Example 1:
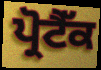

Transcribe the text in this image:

ਪ੍ਰੋਟੈੱਕ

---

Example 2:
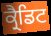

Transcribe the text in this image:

ਕ੍ਰੈਡਿਟ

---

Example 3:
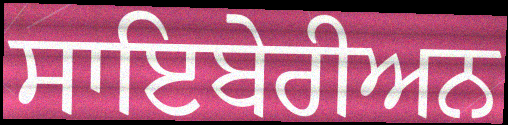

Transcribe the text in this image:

ਸਾਇਬੇਰੀਅਨ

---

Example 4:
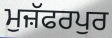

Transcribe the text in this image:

ਮੁਜ਼ੱਫਰਪੁਰ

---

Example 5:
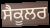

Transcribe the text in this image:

ਸੈਕੂਲਰ